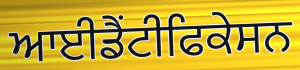
ਆਈਡੈਂਟੀਫਿਕੇਸਨ